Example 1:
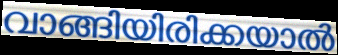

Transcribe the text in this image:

വാങ്ങിയിരിക്കയാൽ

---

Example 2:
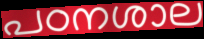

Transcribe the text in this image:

പഠനശാല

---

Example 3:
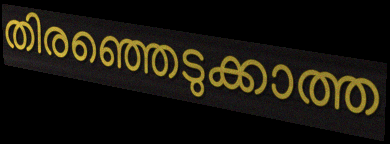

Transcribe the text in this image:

തിരഞ്ഞെടുക്കാത്ത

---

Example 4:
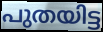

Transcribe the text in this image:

പുതയിട്ട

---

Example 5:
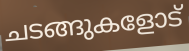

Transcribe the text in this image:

ചടങ്ങുകളോട്